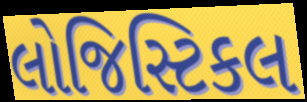
લોજિસ્ટિકલ